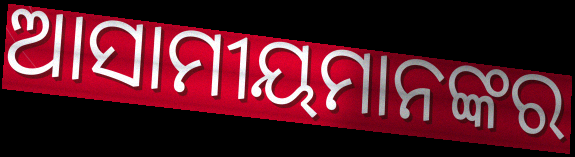
ଆସାମୀୟମାନଙ୍କର